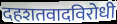
दहशतवादविरोधी